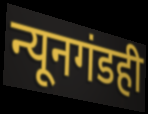
न्यूनगंडही